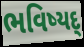
ભવિષ્યદ્